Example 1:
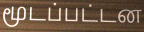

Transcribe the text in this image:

மூடப்பட்டன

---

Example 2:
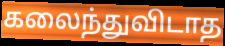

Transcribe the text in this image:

கலைந்துவிடாத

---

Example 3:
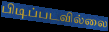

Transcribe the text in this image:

பிடிப்படவில்லை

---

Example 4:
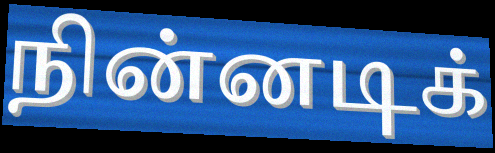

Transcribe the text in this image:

நின்னடிக்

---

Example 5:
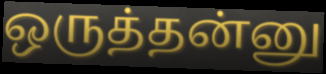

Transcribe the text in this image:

ஒருத்தன்னு